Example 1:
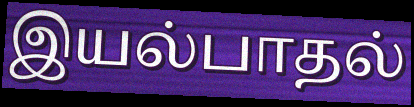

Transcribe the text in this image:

இயல்பாதல்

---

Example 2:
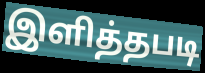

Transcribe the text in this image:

இளித்தபடி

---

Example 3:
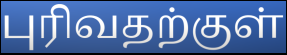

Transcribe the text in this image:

புரிவதற்குள்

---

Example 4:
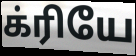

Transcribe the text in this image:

க்ரியே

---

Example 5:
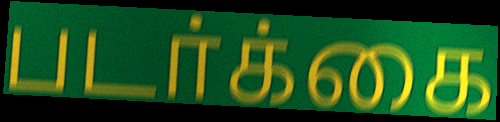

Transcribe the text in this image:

படர்க்கை